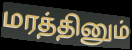
மரத்தினும்